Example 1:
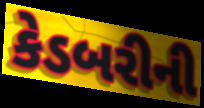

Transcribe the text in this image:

કેડબરીની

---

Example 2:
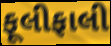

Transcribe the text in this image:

ફૂલીફાલી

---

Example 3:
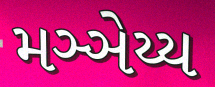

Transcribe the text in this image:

મઞ્ઞેય્ય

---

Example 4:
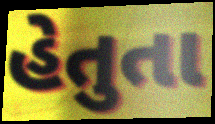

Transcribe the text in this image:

હેતુતા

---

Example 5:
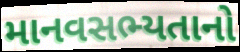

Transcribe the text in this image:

માનવસભ્યતાનો